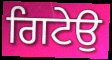
ਗਿਟੇਉ